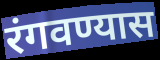
रंगवण्यास